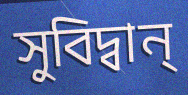
সুবিদ্বান্